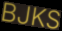
BJKS